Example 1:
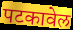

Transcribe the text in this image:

पटकावेल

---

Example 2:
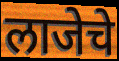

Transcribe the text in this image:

लाजेचे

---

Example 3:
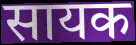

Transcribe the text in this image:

सायक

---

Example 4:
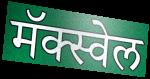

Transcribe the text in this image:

मॅक्स्वेल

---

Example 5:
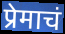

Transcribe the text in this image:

प्रेमाचं